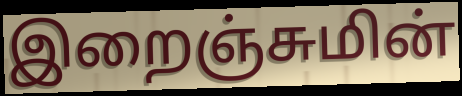
இறைஞ்சுமின்